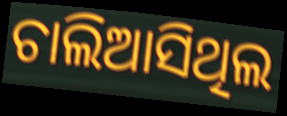
ଚାଲିଆସିଥିଲ